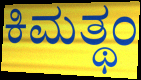
ಕಿಮತ್ಥಂ